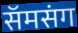
सॅमसंग